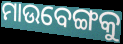
ମାଉବେଙ୍ଗକୁ